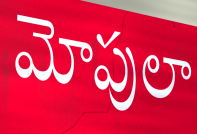
మోపులా